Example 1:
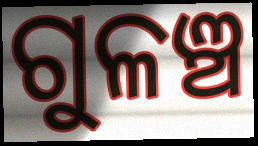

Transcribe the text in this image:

ଗୁଳଞ୍ଚ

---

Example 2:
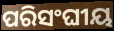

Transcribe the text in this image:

ପରିସଂଘୀୟ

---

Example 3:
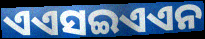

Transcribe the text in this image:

ଏଏସଇଏଏନ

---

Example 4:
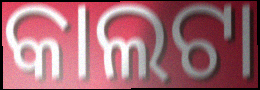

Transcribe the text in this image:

କାଲଟା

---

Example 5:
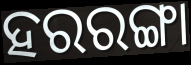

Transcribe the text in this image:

ହରରଙ୍ଗା